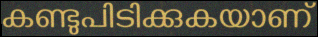
കണ്ടുപിടിക്കുകയാണ്